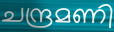
ചന്ദ്രമണി